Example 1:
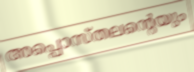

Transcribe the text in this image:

അപ്പൊസ്തലന്റെയും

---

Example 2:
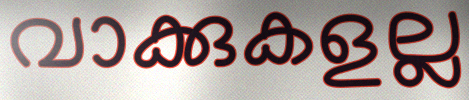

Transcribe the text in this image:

വാക്കുകളല്ല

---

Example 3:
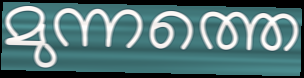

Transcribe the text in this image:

മുന്നത്തെ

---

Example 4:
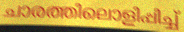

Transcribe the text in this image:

ചാരത്തിലൊളിപ്പിച്ച്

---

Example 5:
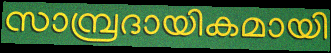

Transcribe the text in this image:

സാമ്പ്രദായികമായി